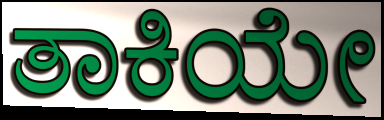
ತಾಕಿಯೇ